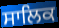
ਸਾਲਿਕ